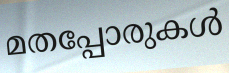
മതപ്പോരുകൾ